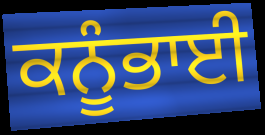
ਕਨੂੰਭਾਈ